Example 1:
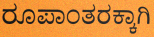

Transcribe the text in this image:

ರೂಪಾಂತರಕ್ಕಾಗಿ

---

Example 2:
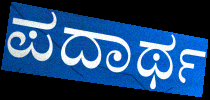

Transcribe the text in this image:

ಪದಾರ್ಥ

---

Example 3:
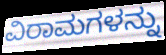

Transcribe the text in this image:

ವಿರಾಮಗಳನ್ನು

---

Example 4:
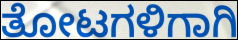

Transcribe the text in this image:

ತೋಟಗಳಿಗಾಗಿ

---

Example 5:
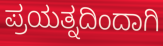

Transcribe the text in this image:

ಪ್ರಯತ್ನದಿಂದಾಗಿ